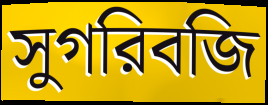
সুগরিবজি